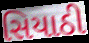
સિયાઠી